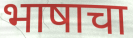
भाषाचा